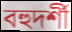
বহুদর্শী